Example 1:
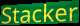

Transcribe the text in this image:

Stacker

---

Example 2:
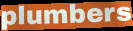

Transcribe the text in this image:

plumbers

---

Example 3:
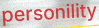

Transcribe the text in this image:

personility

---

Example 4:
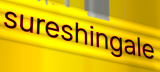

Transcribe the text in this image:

sureshingale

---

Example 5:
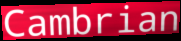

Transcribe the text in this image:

Cambrian